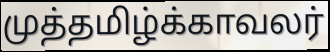
முத்தமிழ்க்காவலர்